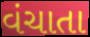
વંચાતા